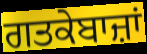
ਗਤਕੇਬਾਜ਼ਾਂ